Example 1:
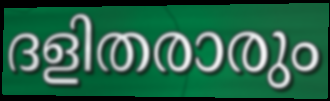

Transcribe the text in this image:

ദളിതരാരും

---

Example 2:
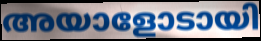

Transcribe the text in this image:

അയാളോടായി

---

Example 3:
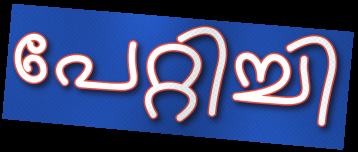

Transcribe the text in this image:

പേറ്റിച്ചി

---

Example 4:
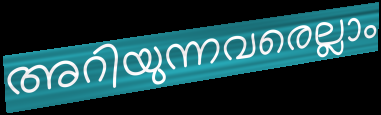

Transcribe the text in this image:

അറിയുന്നവരെല്ലാം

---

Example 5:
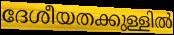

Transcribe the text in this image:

ദേശീയതക്കുള്ളിൽ